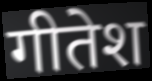
गीतेश